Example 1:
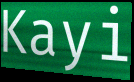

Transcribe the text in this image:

Kayi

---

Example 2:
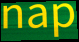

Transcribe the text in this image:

nap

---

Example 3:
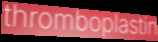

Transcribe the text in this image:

thromboplastin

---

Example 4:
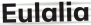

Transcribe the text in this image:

Eulalia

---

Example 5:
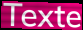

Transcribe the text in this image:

Texte